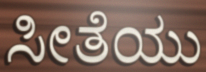
ಸೀತೆಯು